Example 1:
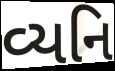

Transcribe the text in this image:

વ્યનિ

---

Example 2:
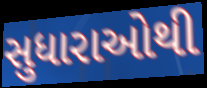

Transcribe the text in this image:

સુધારાઓથી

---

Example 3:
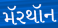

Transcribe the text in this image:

મૅરથૉન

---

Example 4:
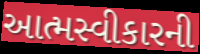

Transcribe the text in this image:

આત્મસ્વીકારની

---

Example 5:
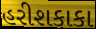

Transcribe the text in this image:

હરીશકાકા